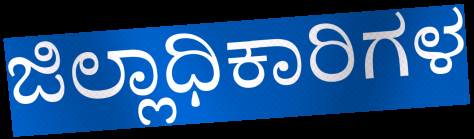
ಜಿಲ್ಲಾಧಿಕಾರಿಗಳ